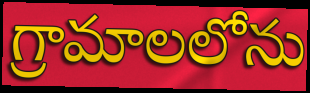
గ్రామాలలోను